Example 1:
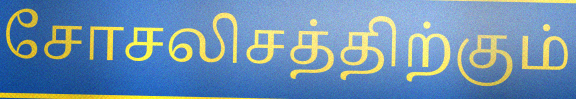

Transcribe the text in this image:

சோசலிசத்திற்கும்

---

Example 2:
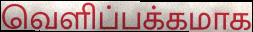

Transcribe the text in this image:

வெளிப்பக்கமாக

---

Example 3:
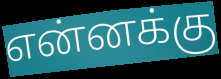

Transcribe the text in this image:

என்னக்கு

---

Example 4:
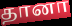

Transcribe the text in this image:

தானா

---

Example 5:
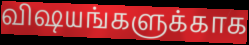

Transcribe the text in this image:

விஷயங்களுக்காக